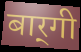
बार्गी